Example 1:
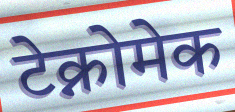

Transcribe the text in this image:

टेक्नोमेक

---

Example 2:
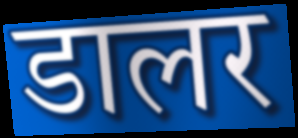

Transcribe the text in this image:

डालर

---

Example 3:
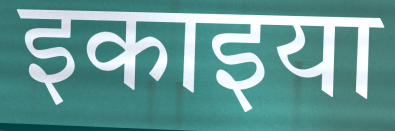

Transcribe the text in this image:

इकाइया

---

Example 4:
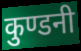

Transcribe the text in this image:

कुण्डनी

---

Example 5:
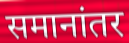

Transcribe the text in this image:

समानांतर